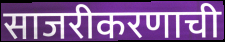
साजरीकरणाची